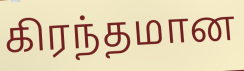
கிரந்தமான